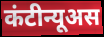
कंटीन्यूअस